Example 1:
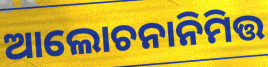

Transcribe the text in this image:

ଆଲୋଚନାନିମିତ୍ତ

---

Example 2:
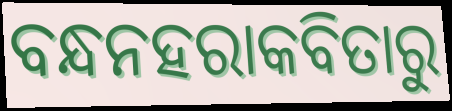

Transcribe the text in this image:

ବନ୍ଧନହରାକବିତାରୁ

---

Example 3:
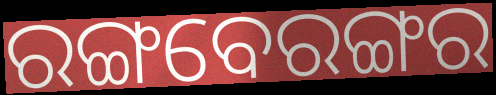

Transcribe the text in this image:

ରଙ୍ଗବେରଙ୍ଗର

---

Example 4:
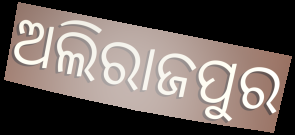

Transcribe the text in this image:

ଅଲିରାଜପୁର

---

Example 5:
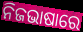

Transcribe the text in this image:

ନିଜଭାଷାରେ